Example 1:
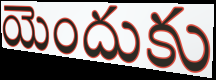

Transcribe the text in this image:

యెందుకు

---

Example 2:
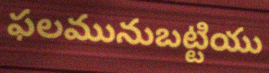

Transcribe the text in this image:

ఫలమునుబట్టియు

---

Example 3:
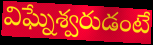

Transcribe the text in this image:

విఘ్నేశ్వరుడంటే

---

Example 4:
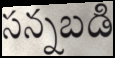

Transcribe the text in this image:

సన్నబడి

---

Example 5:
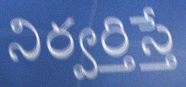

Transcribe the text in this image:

నిర్వర్తిస్తే